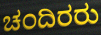
ಚಂದಿರರು